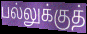
பல்லுக்குத்